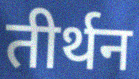
तीर्थन